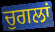
ਚੁਗਲਾਂ